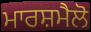
ਮਾਰਸ਼ਮੈਲੋ